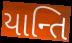
યાન્તિ